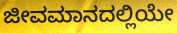
ಜೀವಮಾನದಲ್ಲಿಯೇ